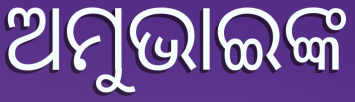
ଅମୁଭାଇଙ୍କ